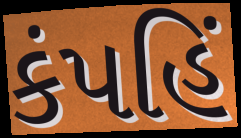
કંપહિં